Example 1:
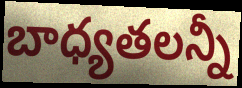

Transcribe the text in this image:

బాధ్యతలన్నీ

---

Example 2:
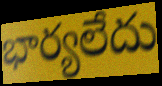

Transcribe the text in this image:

భార్యలేదు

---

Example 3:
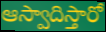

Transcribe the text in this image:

ఆస్వాదిస్తారో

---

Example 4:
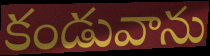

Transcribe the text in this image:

కండువాను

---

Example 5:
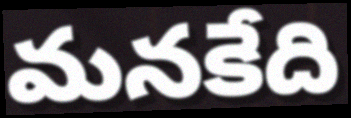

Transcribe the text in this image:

మనకేది